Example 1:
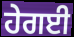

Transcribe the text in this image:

ਹੇਗਈ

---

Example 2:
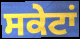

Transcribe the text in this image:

ਸਕੇਟਾਂ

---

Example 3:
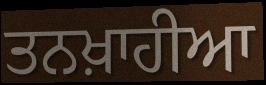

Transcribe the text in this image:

ਤਨਖ਼ਾਹੀਆ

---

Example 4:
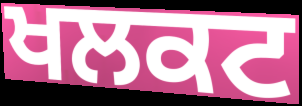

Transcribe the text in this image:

ਖਲਕਟ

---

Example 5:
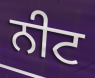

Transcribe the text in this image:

ਨੀਟ